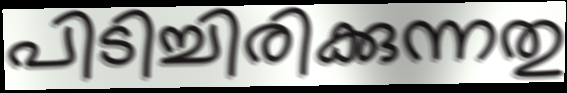
പിടിച്ചിരിക്കുന്നതു